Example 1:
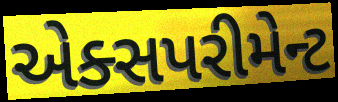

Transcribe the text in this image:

એક્સપરીમેન્ટ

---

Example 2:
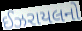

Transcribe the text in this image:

ઈઝરાયલનો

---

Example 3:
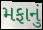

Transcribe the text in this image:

મફાનું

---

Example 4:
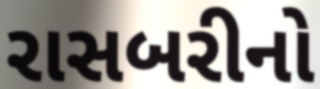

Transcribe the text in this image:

રાસબરીનો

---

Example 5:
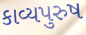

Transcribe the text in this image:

કાવ્યપુરુષ